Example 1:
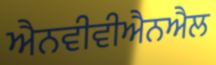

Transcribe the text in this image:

ਐਨਵੀਵੀਐਨਐਲ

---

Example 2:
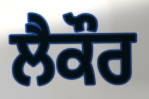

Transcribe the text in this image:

ਲੈਕੌਰ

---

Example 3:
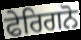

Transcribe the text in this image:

ਫੇਰਿਗਨੋ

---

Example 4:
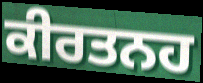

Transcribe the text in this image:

ਕੀਰਤਨਹ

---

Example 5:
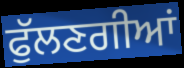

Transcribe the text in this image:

ਫੁੱਲਣਗੀਆਂ